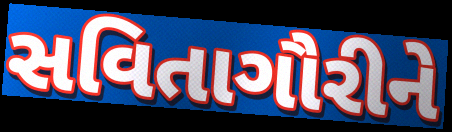
સવિતાગૌરીને